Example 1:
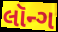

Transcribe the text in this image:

લૉન્ગ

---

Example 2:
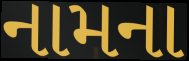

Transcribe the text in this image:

નામના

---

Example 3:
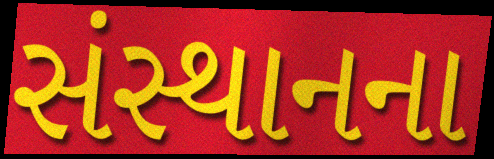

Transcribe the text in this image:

સંસ્થાનના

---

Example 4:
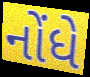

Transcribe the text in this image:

નોંધે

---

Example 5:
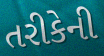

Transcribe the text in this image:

તરીકેની